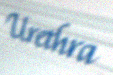
Urethra